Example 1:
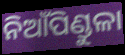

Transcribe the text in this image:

ନିଆଁପିଣ୍ଡୁଳା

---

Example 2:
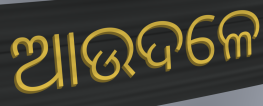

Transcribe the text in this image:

ଆଉଦଳେ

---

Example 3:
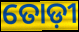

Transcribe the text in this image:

ତୋଡ଼ୀ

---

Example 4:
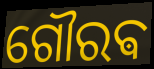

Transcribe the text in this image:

ଗୌରଵ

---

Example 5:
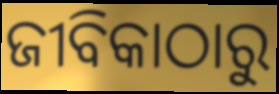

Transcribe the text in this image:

ଜୀବିକାଠାରୁ